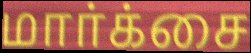
மார்க்சை